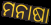
ମନାଷା